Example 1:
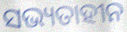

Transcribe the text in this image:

ସଭ୍ୟତାହୀନ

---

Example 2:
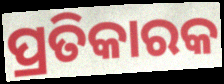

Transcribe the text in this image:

ପ୍ରତିକାରକ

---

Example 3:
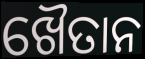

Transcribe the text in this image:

ଖୈତାନ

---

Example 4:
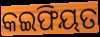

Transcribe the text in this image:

କଇଫିୟତ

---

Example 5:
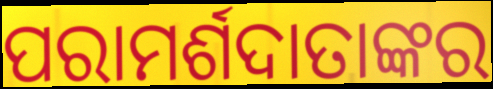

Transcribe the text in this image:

ପରାମର୍ଶଦାତାଙ୍କର